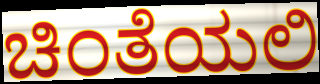
ಚಿಂತೆಯಲಿ